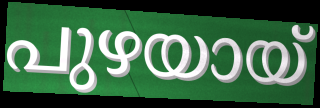
പുഴയായ്